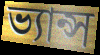
ভ্যান্স